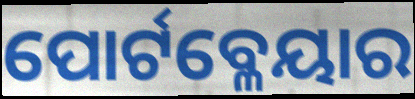
ପୋର୍ଟବ୍ଳେୟାର